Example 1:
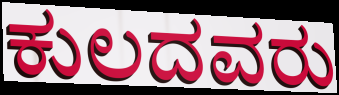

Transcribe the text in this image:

ಕುಲದವರು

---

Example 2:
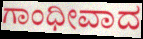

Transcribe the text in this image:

ಗಾಂಧೀವಾದ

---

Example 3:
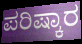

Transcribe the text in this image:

ಪರಿಷ್ಕಾರ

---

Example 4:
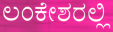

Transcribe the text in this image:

ಲಂಕೇಶರಲ್ಲಿ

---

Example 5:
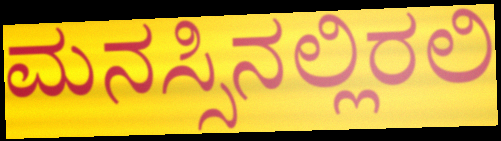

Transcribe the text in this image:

ಮನಸ್ಸಿನಲ್ಲಿರಲಿ